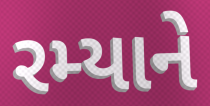
રમ્યાને